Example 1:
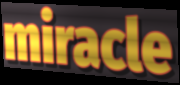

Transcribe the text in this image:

miracle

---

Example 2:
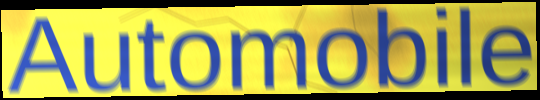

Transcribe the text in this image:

Automobile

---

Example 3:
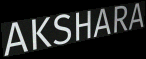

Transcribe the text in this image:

AKSHARA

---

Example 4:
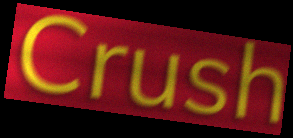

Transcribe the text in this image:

Crush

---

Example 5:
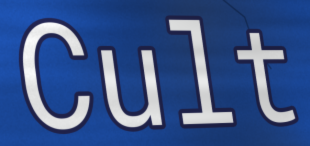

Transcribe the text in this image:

Cult